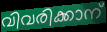
വിവരിക്കാന്